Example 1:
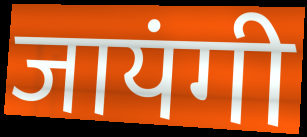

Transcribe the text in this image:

जायंगी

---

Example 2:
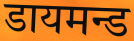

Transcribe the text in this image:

डायमन्ड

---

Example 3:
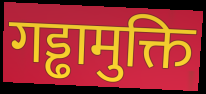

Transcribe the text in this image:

गड्ढामुक्ति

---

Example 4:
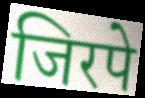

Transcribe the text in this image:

जिरपे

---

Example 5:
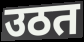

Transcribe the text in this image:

उठत